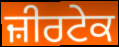
ਜ਼ੀਰਟੇਕ